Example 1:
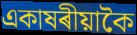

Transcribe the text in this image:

একাষৰীয়াকৈ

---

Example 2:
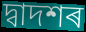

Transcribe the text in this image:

দ্বাদশৰ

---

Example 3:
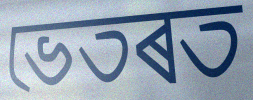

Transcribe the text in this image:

ভেতৰত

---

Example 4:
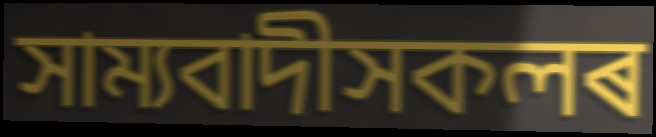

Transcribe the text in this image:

সাম্যবাদীসকলৰ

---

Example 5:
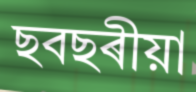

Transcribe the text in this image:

ছবছৰীয়া